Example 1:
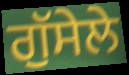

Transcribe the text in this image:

ਗੁੱਸੇਲੇ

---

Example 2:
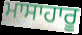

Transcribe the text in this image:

ਮਾਸਾਹਾਰੂ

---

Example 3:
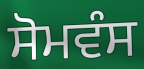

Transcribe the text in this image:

ਸੋਮਵੰਸ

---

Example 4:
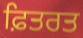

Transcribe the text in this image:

ਫ਼ਿਤਰਤ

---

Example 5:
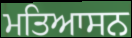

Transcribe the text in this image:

ਮਤਿਆਸਨ